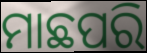
ମାଛପରି